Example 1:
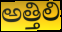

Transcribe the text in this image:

అత్తిలి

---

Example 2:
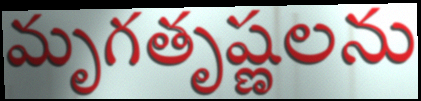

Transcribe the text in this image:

మృగతృష్ణలను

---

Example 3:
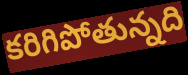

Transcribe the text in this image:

కరిగిపోతున్నది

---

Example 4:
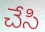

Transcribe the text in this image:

చేసి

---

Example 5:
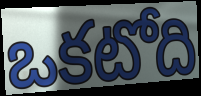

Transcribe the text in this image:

ఒకటోది